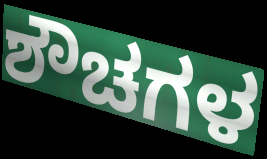
ಶೌಚಗಳ